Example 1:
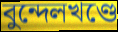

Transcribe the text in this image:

বুন্দেলখণ্ডে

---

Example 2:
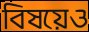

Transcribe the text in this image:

বিষয়েও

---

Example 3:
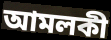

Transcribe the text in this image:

আমলকী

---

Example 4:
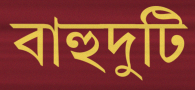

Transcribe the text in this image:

বাহুদুটি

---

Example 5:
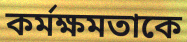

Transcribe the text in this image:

কর্মক্ষমতাকে